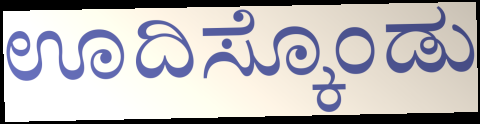
ಊದಿಸ್ಕೊಂಡು